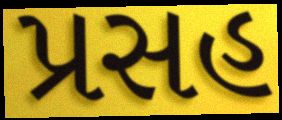
પ્રસહ